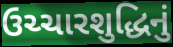
ઉચ્ચારશુદ્ધિનું